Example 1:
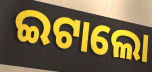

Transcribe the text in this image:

ଇଟାଲୋ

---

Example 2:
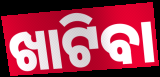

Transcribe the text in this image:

ଖାଟିବା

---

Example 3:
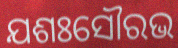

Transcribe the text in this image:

ଯଶଃସୌରଭ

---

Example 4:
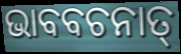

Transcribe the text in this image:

ଭାବବଚନାତ୍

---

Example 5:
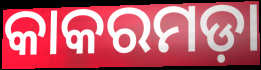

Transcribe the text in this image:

କାକରମଡ଼ା